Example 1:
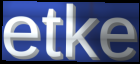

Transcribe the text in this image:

etke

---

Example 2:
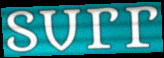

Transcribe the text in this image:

surr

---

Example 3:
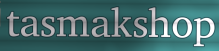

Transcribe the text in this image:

tasmakshop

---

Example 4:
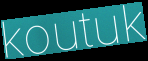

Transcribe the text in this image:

koutuk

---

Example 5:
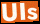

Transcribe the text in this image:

UIs